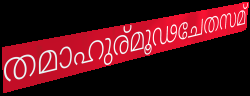
തമാഹുര്മൂഢചേതസമ്